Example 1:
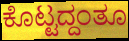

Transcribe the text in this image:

ಕೊಟ್ಟದ್ದಂತೂ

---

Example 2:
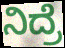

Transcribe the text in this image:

ನಿದ್ರೆ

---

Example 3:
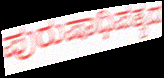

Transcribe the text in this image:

ಪುರುಷಾಧಿಪತ್ಯದ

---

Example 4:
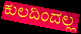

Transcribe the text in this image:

ಕುಲದಿಂದಲ್ಲ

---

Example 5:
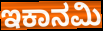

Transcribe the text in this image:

ಇಕಾನಮಿ